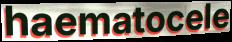
haematocele